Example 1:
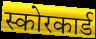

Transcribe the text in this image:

स्कोरकार्ड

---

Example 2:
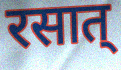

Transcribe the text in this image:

रसात्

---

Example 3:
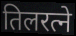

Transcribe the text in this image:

तिलरत्ने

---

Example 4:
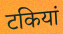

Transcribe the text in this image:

टकियां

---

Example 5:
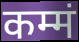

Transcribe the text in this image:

कम्मं